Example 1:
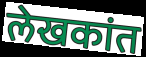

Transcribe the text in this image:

लेखकांत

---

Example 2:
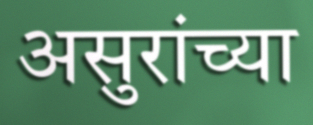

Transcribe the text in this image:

असुरांच्या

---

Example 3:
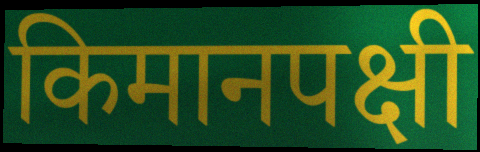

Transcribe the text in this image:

किमानपक्षी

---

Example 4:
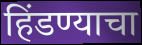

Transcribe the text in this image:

हिंडण्याचा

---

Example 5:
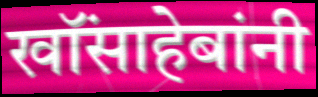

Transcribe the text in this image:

खॉंसाहेबांनी